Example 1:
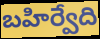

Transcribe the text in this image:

బహిర్వేది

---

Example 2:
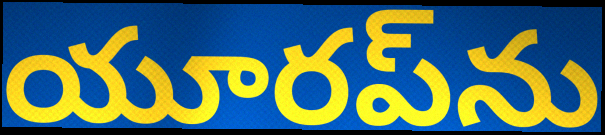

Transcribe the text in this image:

యూరప్‌ను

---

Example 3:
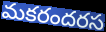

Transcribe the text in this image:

మకరందరస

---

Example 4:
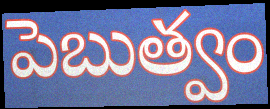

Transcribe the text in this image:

పెబుత్వం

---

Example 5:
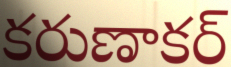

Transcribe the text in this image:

కరుణాకర్